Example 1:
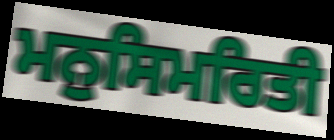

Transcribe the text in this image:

ਮਨੁਸਿਮਰਿਤੀ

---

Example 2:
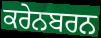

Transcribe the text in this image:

ਕਰੇਨਬਰਨ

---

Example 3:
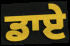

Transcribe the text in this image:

ਡਾਏ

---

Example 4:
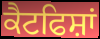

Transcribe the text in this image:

ਕੈਟਫਿਸ਼ਾਂ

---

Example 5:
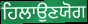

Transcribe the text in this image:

ਹਿਲਾਉਣਯੋਗ